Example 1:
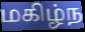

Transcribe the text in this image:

மகிழ்ந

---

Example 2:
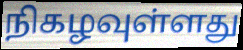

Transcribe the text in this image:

நிகழவுள்ளது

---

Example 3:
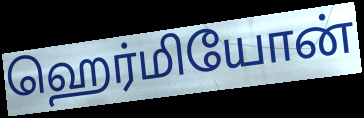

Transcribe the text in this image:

ஹெர்மியோன்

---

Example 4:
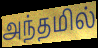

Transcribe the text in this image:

அந்தமில்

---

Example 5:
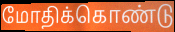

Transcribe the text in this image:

மோதிக்கொண்டு